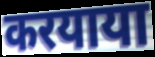
करयाया